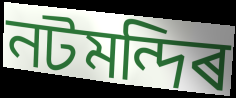
নটমন্দিৰ